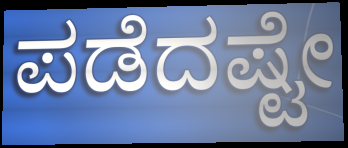
ಪಡೆದಷ್ಟೇ